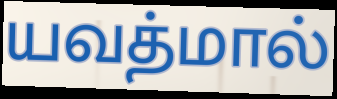
யவத்மால்